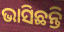
ଭାସିଛନ୍ତି